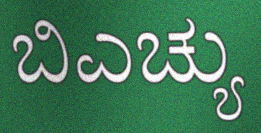
ಬಿಎಚ್ಯು